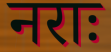
नराः